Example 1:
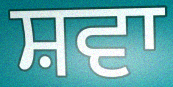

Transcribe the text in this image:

ਸ਼ਵਾ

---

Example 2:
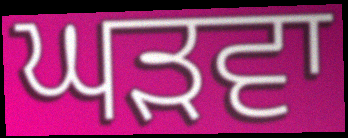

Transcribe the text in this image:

ਘੜਵਾ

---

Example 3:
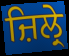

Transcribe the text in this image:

ਜ਼ਿਲ੍ਰੇ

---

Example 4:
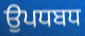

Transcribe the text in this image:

ਉਪਧਬਧ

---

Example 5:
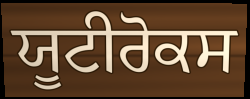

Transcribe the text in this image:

ਯੂਟੀਰੋਕਸ